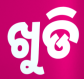
ଖୁଡି